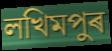
লখিমপুৰ